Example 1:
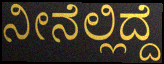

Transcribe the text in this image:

ನೀನೆಲ್ಲಿದ್ದೆ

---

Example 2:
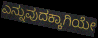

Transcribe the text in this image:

ಎನ್ನುವುದಕ್ಕಾಗಿಯೇ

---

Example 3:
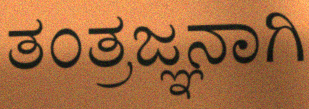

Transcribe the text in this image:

ತಂತ್ರಜ್ಞನಾಗಿ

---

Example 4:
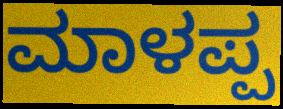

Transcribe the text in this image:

ಮಾಳಪ್ಪ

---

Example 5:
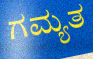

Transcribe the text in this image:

ಗಮ್ಯತ